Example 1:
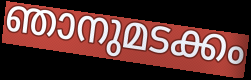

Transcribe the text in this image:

ഞാനുമടക്കം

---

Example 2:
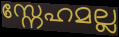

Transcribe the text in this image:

സ്നേഹമല്ല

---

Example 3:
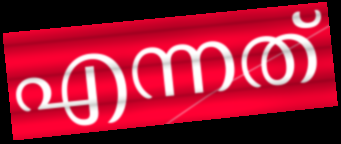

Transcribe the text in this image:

എന്നത്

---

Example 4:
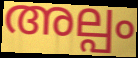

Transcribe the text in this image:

അല്പം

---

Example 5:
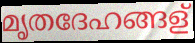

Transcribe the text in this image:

മൃതദേഹങ്ങള്